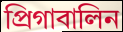
প্রিগাবালিন